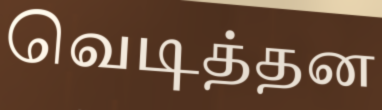
வெடித்தன